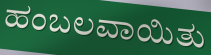
ಹಂಬಲವಾಯಿತು